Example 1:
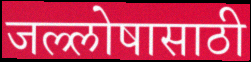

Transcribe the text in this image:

जल्लोषासाठी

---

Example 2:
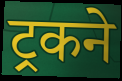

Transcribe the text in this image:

ट्रकने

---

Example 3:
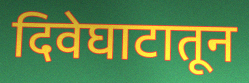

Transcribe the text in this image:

दिवेघाटातून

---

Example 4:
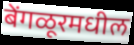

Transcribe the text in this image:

बेंगळूरमधील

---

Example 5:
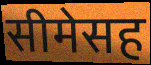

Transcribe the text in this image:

सीमेसह